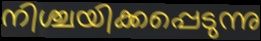
നിശ്ചയിക്കപ്പെടുന്നു